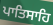
ਪਾਤਿਸਾਹਿ